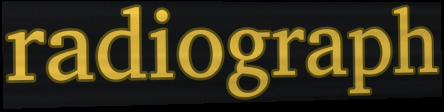
radiograph